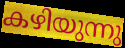
കഴിയുന്നു